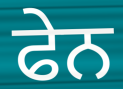
ਫੇਨ